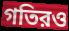
গতিরও